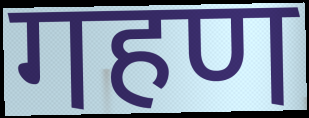
गहण